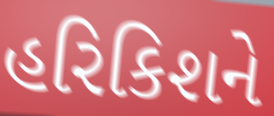
હરિકિશને